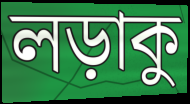
লড়াকু